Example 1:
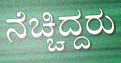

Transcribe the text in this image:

ನೆಚ್ಚಿದ್ದರು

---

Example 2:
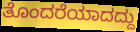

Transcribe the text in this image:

ತೊಂದರೆಯಾದದ್ದು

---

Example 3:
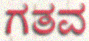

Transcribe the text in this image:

ಗತವ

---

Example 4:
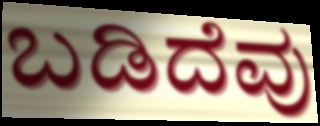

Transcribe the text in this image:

ಬಡಿದೆವು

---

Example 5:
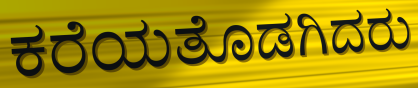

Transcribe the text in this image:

ಕರೆಯತೊಡಗಿದರು